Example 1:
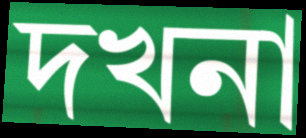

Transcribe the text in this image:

দখনা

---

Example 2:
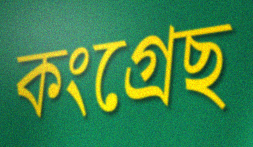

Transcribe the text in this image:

কংগ্ৰেছ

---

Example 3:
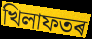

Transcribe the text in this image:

খিলাফতৰ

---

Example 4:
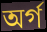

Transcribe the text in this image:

অৰ্গ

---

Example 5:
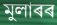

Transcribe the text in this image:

মুলাৰৰ